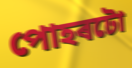
পোহৰটো